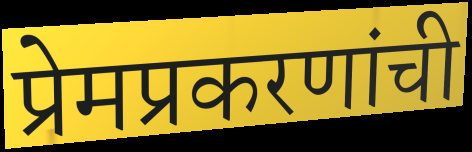
प्रेमप्रकरणांची